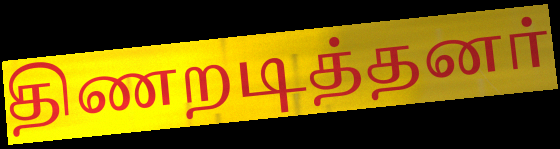
திணறடித்தனர்